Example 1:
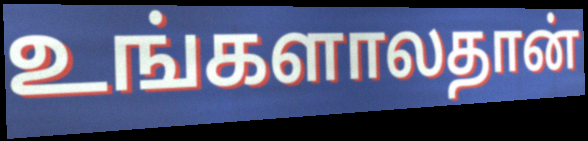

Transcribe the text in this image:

உங்களாலதான்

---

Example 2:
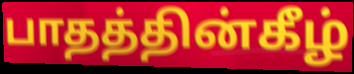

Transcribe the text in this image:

பாதத்தின்கீழ்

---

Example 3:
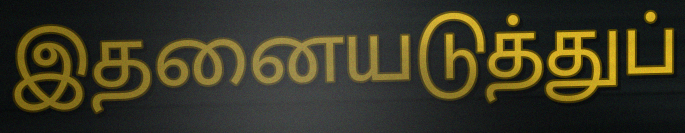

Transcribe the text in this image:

இதனையடுத்துப்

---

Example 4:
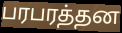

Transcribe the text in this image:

பரபரத்தன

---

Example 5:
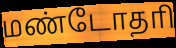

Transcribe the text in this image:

மண்டோதரி